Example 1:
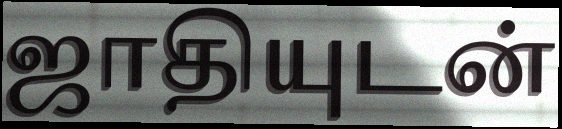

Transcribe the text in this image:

ஜாதியுடன்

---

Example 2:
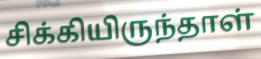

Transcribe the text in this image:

சிக்கியிருந்தாள்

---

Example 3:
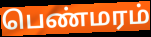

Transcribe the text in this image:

பெண்மரம்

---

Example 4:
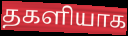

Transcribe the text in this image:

தகளியாக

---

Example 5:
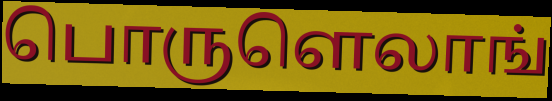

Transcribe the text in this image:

பொருளெலாங்